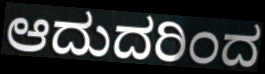
ಆದುದರಿಂದ